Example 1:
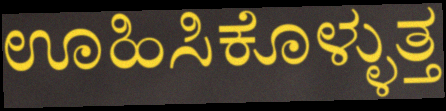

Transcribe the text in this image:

ಊಹಿಸಿಕೊಳ್ಳುತ್ತ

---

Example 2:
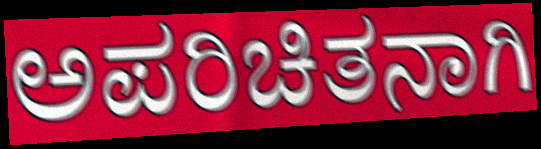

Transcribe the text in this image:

ಅಪರಿಚಿತನಾಗಿ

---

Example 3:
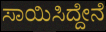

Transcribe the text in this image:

ಸಾಯಿಸಿದ್ದೇನೆ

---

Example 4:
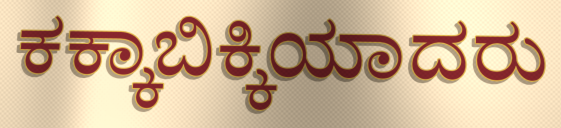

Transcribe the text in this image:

ಕಕ್ಕಾಬಿಕ್ಕಿಯಾದರು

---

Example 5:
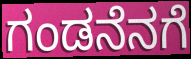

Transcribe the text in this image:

ಗಂಡನೆನಗೆ